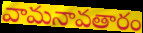
వామనావతారం